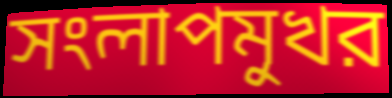
সংলাপমুখর